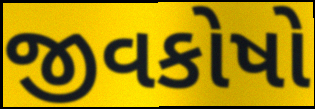
જીવકોષો